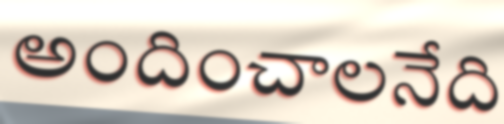
అందించాలనేది